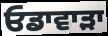
ਓਡਾਵਾੜਾ